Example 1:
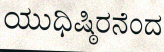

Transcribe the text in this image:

ಯುಧಿಷ್ಠಿರನೆಂದ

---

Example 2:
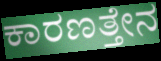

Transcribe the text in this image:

ಕಾರಣತ್ತೇನ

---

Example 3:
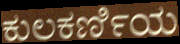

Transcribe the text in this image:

ಕುಲಕರ್ಣಿಯ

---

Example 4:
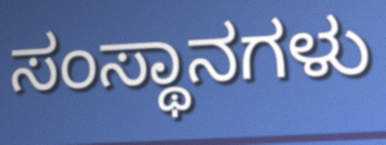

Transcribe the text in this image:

ಸಂಸ್ಥಾನಗಳು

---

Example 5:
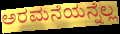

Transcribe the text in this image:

ಅರಮನೆಯನ್ನೆಲ್ಲ